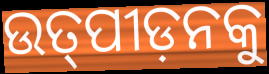
ଉତ୍‌ପୀଡ଼ନକୁ